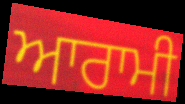
ਆਰਾਮੀ